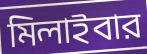
মিলাইবার